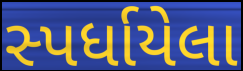
સ્પર્ધાયેલા